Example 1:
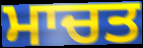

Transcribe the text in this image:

ਮਾਚਤ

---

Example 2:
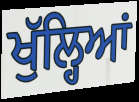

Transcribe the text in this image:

ਖੁੱਲ੍ਹਿਆਂ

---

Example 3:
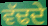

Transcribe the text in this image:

ਵੱਢਦੇ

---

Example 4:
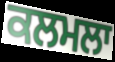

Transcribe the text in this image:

ਕਲਮਲਾ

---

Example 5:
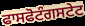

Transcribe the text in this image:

ਫਾਸਫੋਟੰਗਸਟੇਟ